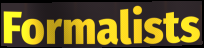
Formalists